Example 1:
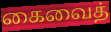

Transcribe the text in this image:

கைவைத்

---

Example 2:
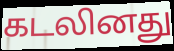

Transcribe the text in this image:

கடலினது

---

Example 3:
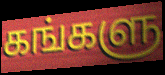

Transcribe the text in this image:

கங்களு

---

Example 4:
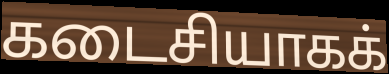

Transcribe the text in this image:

கடைசியாகக்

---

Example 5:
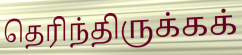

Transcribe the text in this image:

தெரிந்திருக்கக்